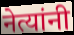
नेत्यांनी